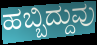
ಹಬ್ಬಿದ್ದುವು